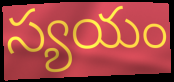
స్యయం